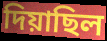
দিয়াছিল